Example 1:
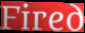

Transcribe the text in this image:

Fired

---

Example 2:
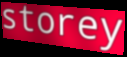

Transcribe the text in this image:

storey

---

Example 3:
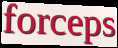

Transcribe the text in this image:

forceps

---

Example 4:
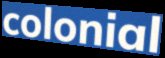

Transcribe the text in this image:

colonial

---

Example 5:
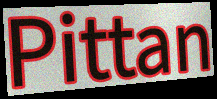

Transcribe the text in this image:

Pittan